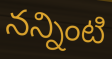
నన్నింటి